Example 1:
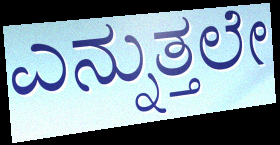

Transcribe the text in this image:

ಎನ್ನುತ್ತಲೇ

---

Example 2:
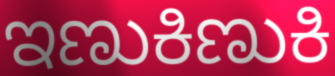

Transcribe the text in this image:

ಇಣುಕಿಣುಕಿ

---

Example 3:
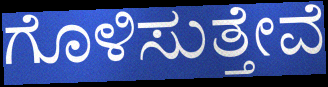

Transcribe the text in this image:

ಗೊಳಿಸುತ್ತೇವೆ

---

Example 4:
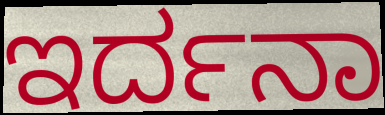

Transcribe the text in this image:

ಇರ್ದನಾ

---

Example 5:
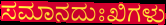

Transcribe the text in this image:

ಸಮಾನದುಃಖಿಗಳು